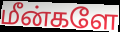
மீன்களே